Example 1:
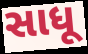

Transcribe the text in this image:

સાધૂ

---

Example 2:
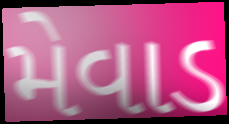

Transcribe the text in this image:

મેવાડ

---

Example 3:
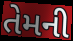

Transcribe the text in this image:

તેમની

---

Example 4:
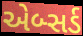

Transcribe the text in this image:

એબ્સર્ડ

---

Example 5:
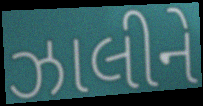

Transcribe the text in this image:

ઝાલીને